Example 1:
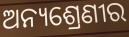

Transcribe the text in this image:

ଅନ୍ୟଶ୍ରେଣୀର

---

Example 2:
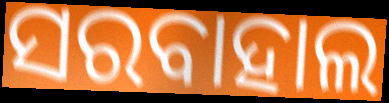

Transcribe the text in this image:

ସରବାହାଲ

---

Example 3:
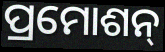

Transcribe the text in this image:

ପ୍ରମୋଶନ୍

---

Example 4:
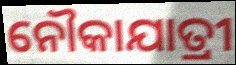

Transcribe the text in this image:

ନୌକାଯାତ୍ରୀ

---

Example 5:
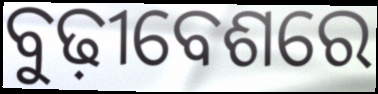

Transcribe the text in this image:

ବୁଢ଼ୀବେଶରେ